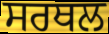
ਸਰਥਲ